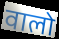
वालो